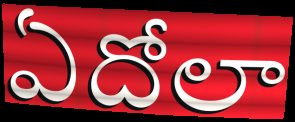
ఏదోలా